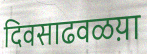
दिवसाढवळय़ा